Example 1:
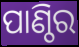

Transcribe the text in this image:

ପାଣ୍ଠିର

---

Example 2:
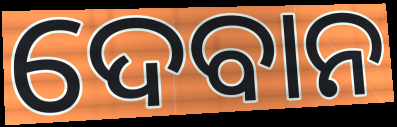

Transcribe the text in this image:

ଦେବାନ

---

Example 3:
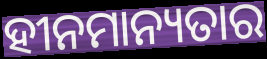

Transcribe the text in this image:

ହୀନମାନ୍ୟତାର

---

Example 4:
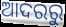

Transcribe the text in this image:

ଆଦରରୁ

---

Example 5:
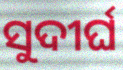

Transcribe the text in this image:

ସୁଦୀର୍ଘ